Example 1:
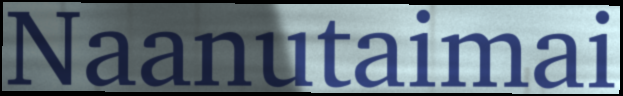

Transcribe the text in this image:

Naanutaimai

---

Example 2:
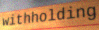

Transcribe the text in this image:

withholding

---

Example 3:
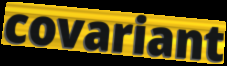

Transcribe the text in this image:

covariant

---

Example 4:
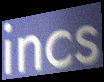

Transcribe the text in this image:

incs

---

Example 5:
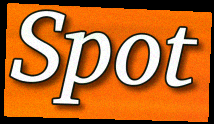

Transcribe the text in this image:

Spot